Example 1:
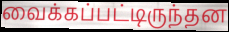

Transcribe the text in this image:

வைக்கப்பட்டிருந்தன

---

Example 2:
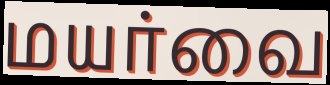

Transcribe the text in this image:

மயர்வை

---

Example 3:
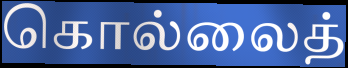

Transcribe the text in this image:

கொல்லைத்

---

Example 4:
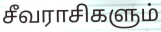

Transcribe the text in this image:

சீவராசிகளும்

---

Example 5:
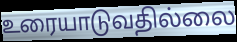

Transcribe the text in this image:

உரையாடுவதில்லை